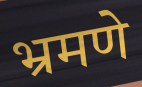
भ्रमणे